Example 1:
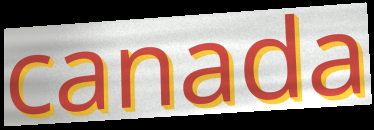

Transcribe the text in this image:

canada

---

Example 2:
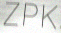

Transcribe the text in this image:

ZPK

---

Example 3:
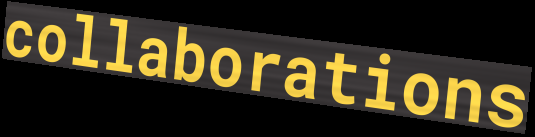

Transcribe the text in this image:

collaborations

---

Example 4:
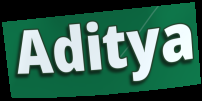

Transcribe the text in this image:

Aditya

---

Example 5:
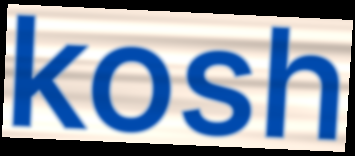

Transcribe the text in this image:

kosh